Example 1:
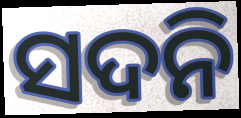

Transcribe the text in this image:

ସଦନି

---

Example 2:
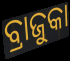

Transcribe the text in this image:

ବ୍ରାଜୁକା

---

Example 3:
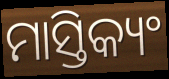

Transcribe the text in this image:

ମାସ୍ତିକ୍ୟଂ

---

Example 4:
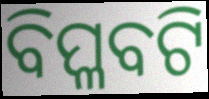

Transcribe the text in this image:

ବିପ୍ଳବଟି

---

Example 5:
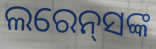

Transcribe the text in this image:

ଲରେନ୍‌ସଙ୍କ